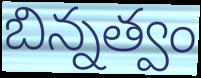
బిన్నత్వం